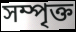
সম্পৃক্ত